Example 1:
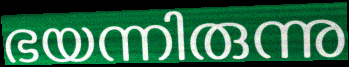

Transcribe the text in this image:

ഭയന്നിരുന്നു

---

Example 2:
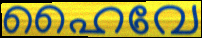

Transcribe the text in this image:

ഹൈവേ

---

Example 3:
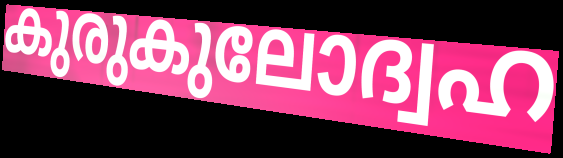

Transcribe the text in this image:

കുരുകുലോദ്വഹ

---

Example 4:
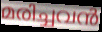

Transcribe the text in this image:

മരിച്ചവൻ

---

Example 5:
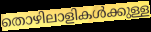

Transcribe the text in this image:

തൊഴിലാളികൾക്കുള്ള